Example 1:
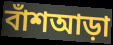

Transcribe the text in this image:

বাঁশআড়া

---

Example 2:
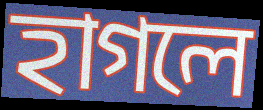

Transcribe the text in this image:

হাগলে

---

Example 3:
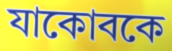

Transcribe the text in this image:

যাকোবকে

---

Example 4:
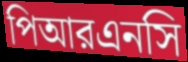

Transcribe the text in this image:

পিআরএনসি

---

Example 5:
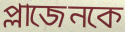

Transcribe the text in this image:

প্লাজেনকে